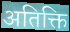
अतिक्ति